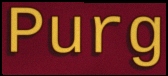
Purg